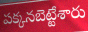
పక్కనబెట్టేశారు